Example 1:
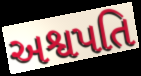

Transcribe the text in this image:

અશ્વપતિ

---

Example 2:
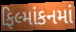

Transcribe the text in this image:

ફિલ્માંકનમાં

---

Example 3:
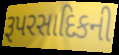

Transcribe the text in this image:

રૂપરસાદિકની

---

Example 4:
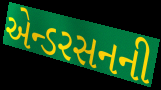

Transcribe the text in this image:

એન્ડરસનની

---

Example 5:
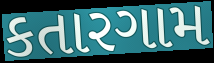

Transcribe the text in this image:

કતારગામ